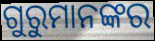
ଗୁରୁମାନଙ୍କର